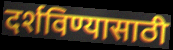
दर्शविण्यासाठी